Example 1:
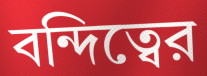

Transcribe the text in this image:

বন্দিত্বের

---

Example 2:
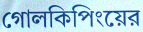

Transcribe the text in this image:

গোলকিপিংয়ের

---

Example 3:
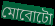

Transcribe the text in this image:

মোবোটো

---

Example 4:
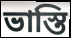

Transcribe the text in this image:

ভাস্তি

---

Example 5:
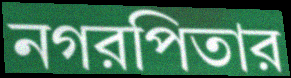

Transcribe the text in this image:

নগরপিতার